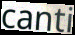
canti